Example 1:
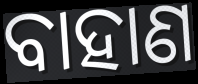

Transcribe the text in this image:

ବାହାଣ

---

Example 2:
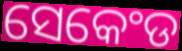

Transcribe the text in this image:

ସେକେଂଡ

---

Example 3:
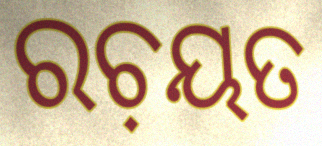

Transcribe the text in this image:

ରଚ଼ୟତ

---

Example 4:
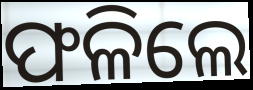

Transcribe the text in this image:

ଫଳିଲେ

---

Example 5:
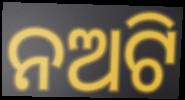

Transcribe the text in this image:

ନଅଟି